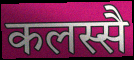
कलस्सै